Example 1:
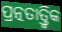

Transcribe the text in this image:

ପ୍ରତ୍ନତାତ୍ତ୍ଵିକ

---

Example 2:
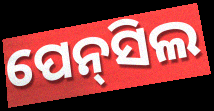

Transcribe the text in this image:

ପେନ୍‌ସିଲ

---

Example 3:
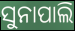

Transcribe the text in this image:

ସୁନାପାଲି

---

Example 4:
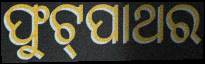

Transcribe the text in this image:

ଫୁଟ୍‌ପାଥର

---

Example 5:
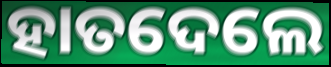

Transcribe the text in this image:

ହାତଦେଲେ